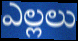
ఎల్లలు